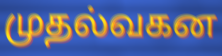
முதல்வகன